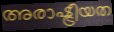
അരാഷ്ട്രീയത